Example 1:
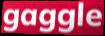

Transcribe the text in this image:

gaggle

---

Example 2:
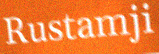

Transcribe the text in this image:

Rustamji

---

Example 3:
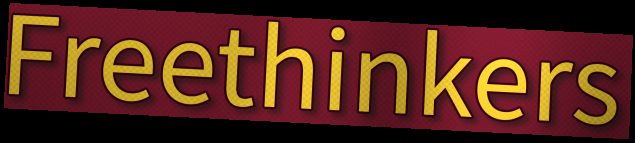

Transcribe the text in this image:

Freethinkers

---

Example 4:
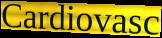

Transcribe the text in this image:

Cardiovasc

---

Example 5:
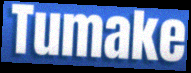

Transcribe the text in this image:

Tumake